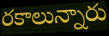
రకాలున్నారు